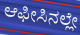
ಆಫೀಸಿನಲ್ಲೇ